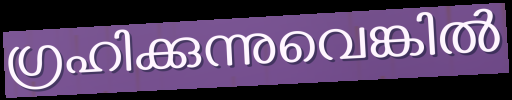
ഗ്രഹിക്കുന്നുവെങ്കിൽ